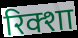
रिक्‍शा